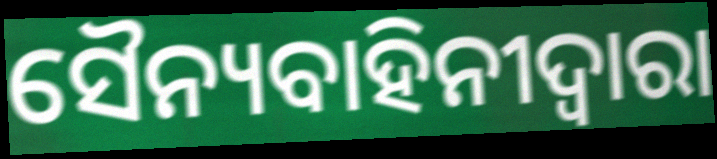
ସୈନ୍ୟବାହିନୀଦ୍ୱାରା